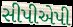
સીપીએપી